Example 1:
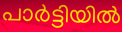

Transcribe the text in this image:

പാർട്ടിയിൽ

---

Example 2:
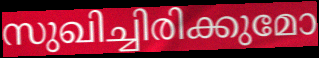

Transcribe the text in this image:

സുഖിച്ചിരിക്കുമോ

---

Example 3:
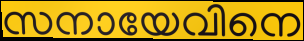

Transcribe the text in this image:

സനായേവിനെ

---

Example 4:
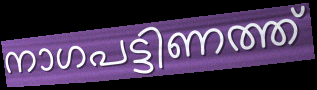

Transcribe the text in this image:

നാഗപട്ടിണത്ത്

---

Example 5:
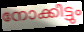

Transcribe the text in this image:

നോക്കീട്ടും